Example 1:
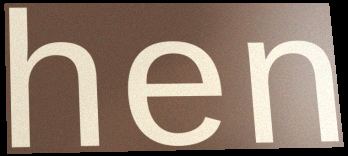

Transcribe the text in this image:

hen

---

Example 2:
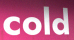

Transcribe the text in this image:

cold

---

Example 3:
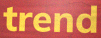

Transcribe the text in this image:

trend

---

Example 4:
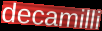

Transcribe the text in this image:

decamilli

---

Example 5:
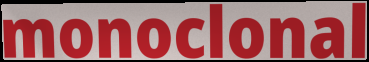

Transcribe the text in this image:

monoclonal